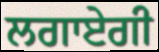
ਲਗਾਏਗੀ